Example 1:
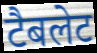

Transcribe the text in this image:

टैबलेट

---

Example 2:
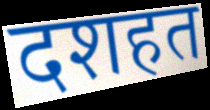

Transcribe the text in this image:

दशहत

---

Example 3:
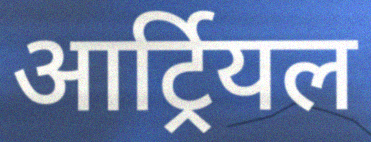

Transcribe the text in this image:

आर्ट्रियल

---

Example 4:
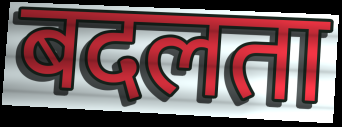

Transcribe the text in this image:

बदलता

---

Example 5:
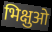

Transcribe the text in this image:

भिक्षुओ